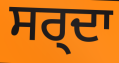
ਸਰ੍ਦਾ